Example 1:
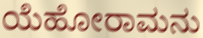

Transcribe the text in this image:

ಯೆಹೋರಾಮನು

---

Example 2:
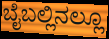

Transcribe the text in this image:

ಬೈಬಲ್ಲಿನಲ್ಲೂ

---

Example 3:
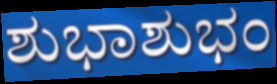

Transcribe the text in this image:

ಶುಭಾಶುಭಂ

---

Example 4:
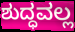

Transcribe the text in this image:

ಶುದ್ಧವಲ್ಲ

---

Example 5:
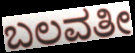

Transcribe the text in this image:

ಬಲವತೀ